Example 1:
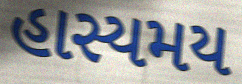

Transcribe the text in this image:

હાસ્યમય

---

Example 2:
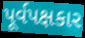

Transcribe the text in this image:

પૂર્વપક્ષકાર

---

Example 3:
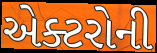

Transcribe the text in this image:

એક્ટરોની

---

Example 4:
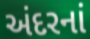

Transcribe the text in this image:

અંદરનાં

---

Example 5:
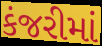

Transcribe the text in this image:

કંજરીમાં